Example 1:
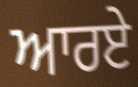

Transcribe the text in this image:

ਆਰਏ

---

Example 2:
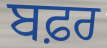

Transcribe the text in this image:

ਬਫ਼ਰ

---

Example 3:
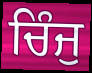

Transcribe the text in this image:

ਚਿੰਜੁ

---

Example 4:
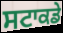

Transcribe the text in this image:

ਸਟਾਕਡੇ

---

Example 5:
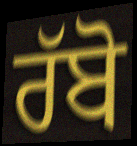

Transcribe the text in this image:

ਰੱਬੋ